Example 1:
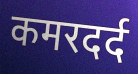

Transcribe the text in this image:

कमरदर्द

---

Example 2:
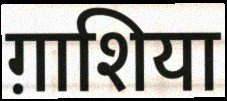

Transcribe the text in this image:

ग़ाशिया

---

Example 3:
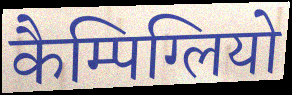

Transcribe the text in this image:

कैम्पिग्लियो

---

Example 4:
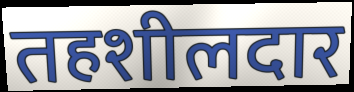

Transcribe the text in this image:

तहशीलदार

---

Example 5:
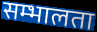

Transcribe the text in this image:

सम्भालता